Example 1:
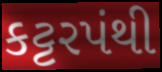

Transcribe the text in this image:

કટ્ટરપંથી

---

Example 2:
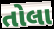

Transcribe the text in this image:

તોલા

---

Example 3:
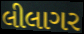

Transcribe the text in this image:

લીલાગર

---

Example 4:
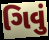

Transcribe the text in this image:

ગિવું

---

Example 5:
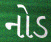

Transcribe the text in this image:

નોડ